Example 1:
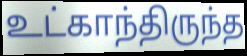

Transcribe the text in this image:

உட்காந்திருந்த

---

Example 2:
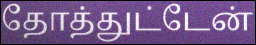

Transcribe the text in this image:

தோத்துட்டேன்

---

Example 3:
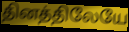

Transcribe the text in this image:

தினத்திலேயே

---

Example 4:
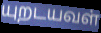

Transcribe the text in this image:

யுறடயவள்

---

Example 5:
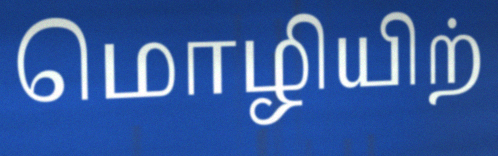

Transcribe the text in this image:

மொழியிற்